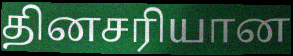
தினசரியான